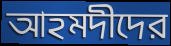
আহমদীদের